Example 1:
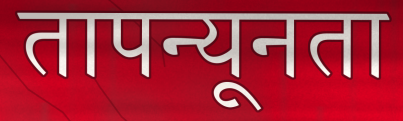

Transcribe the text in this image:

तापन्यूनता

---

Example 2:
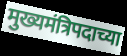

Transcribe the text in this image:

मुख्यमंत्रिपदाच्या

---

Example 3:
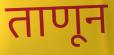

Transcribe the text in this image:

ताणून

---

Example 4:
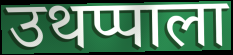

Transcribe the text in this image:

उथप्पाला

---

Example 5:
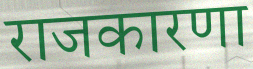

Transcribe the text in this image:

राजकारणा